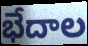
భేదాల